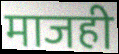
माजही